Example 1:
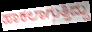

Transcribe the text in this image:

ಹಾಕಲಾಗುತ್ತಿದ್ದು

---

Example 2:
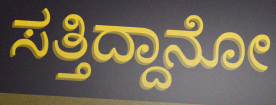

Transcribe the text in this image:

ಸತ್ತಿದ್ದಾನೋ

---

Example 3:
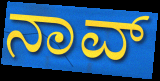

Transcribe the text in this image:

ನಾವ್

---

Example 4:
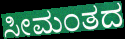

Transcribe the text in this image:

ಸೀಮಂತದ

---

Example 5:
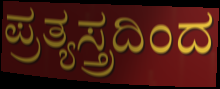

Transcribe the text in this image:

ಪ್ರತ್ಯಸ್ತ್ರದಿಂದ